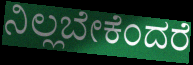
ನಿಲ್ಲಬೇಕೆಂದರೆ